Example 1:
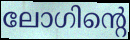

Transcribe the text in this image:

ലോഗിന്റെ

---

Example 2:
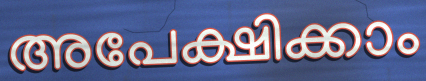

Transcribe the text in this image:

അപേക്ഷിക്കാം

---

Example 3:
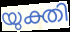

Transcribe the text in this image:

യുക്തി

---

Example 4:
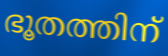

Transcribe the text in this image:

ഭൂതത്തിന്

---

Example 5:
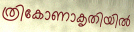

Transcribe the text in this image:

ത്രികോണാകൃതിയിൽ